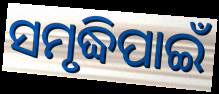
ସମୃଦ୍ଧିପାଇଁ